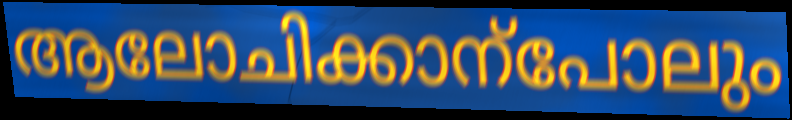
ആലോചിക്കാന്പോലും